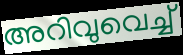
അറിവുവെച്ച്